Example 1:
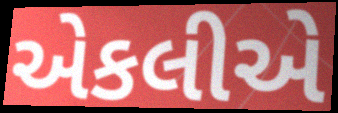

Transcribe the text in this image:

એકલીએ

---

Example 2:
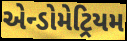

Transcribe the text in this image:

એન્ડોમેટ્રિયમ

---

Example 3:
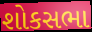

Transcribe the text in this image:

શોકસભા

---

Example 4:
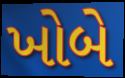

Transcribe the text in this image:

ખોબે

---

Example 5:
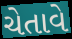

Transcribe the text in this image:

ચેતાવે